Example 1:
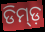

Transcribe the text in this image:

ଡିମ୍ଡ଼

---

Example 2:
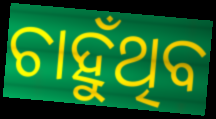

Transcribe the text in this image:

ଚାହୁଁଥିବ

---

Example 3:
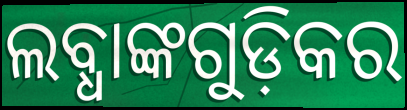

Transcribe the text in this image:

ଲବ୍ଧାଙ୍କଗୁଡ଼ିକର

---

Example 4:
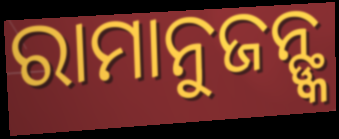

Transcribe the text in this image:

ରାମାନୁଜନ୍ଙ୍କ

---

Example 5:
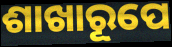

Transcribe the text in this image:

ଶାଖାରୂପେ